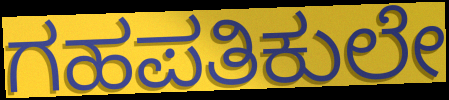
ಗಹಪತಿಕುಲೇ